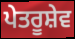
ਪੇਤਰੂਸ਼ੇਵ